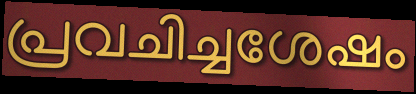
പ്രവചിച്ചശേഷം